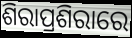
ଶିରାପ୍ରଶିରାରେ